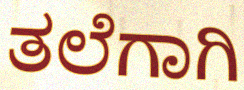
ತಲೆಗಾಗಿ